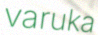
varuka